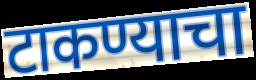
टाकण्याचा